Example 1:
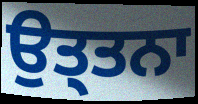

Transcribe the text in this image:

ਉਤ੍ਤਨਾ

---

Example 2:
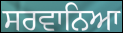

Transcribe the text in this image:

ਸਰਵਾਨਿਆ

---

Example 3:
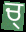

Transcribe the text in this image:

ਚ੍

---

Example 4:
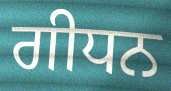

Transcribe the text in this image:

ਗੀਧਨ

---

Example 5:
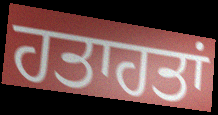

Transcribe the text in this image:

ਹਤਾਹਤਾਂ